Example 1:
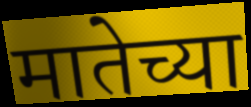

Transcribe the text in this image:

मातेच्या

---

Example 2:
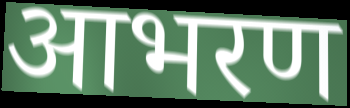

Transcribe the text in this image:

आभरण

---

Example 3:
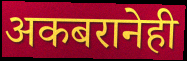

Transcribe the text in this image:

अकबरानेही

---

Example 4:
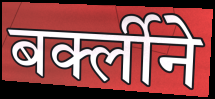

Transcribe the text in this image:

बर्क्लीने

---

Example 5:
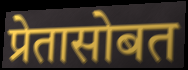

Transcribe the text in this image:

प्रेतासोबत